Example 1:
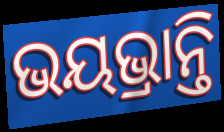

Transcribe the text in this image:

ଭୟଭ୍ରାନ୍ତି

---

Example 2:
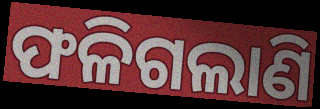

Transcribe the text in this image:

ଫଳିଗଲାଣି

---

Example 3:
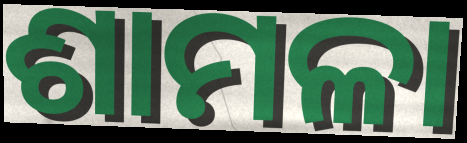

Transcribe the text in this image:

ଶାମଳା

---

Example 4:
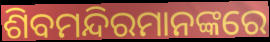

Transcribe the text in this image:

ଶିବମନ୍ଦିରମାନଙ୍କରେ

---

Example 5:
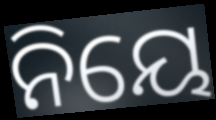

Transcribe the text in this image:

ନିୟେ